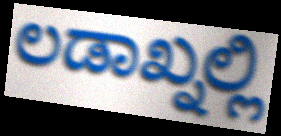
ಲಡಾಖ್ನಲ್ಲಿ